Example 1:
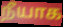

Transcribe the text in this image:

நீயாக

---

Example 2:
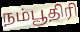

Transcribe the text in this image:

நம்பூதிரி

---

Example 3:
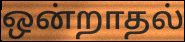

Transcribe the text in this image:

ஒன்றாதல்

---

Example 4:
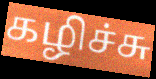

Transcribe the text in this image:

கழிச்சு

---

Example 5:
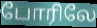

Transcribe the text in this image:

போரிலே